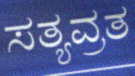
ಸತ್ಯವ್ರತ